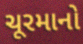
ચૂરમાનો